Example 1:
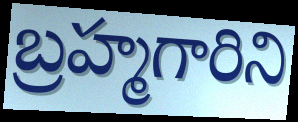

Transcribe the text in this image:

బ్రహ్మగారిని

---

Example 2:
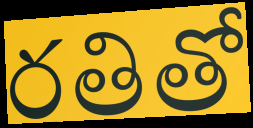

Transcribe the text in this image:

రతితో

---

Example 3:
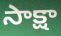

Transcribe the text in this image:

సాక్షా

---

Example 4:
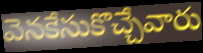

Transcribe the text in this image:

వెనకేసుకొచ్చేవారు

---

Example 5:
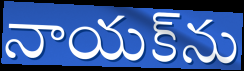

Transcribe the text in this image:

నాయక్‌ను